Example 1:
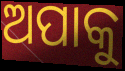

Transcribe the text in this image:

ଅପାକୁ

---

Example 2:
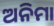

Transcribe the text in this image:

ଅନିମା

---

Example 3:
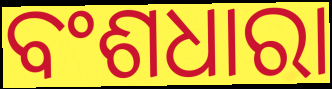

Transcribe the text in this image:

ବଂଶଧାରା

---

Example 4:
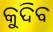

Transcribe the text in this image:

କୁଦିବ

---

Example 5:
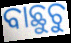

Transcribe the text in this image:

ବାଛୁଚୁ